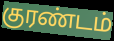
குரண்டம்